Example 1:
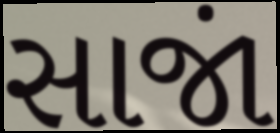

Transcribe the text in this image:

સાજાં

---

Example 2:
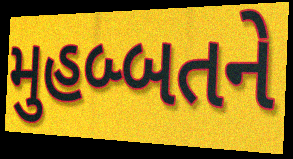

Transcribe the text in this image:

મુહબ્બતને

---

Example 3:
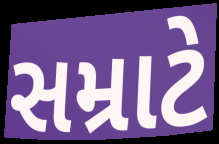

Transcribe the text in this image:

સમ્રાટે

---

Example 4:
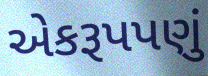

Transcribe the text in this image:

એકરૂપપણું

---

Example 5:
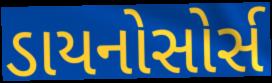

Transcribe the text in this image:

ડાયનોસોર્સ